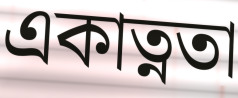
একাত্নতা